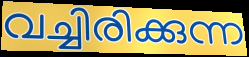
വച്ചിരിക്കുന്ന